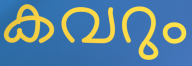
കവറും